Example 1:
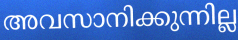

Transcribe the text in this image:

അവസാനിക്കുന്നില്ല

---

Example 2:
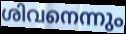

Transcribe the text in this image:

ശിവനെന്നും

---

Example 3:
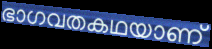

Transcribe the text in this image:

ഭാഗവതകഥയാണ്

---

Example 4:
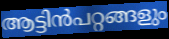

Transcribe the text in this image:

ആട്ടിൻപറ്റങ്ങളും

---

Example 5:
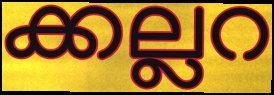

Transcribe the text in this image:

ക്കല്ലറ